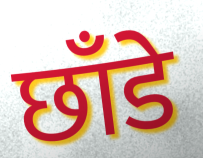
छाँडे